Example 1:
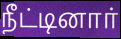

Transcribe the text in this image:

நீட்டினார்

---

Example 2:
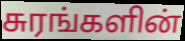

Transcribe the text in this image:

சுரங்களின்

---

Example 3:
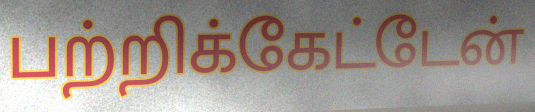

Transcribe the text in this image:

பற்றிக்கேட்டேன்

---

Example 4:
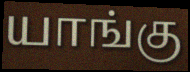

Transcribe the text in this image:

யாங்கு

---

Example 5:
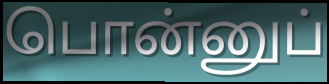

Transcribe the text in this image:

பொன்னுப்